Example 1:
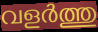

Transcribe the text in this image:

വളർത്തു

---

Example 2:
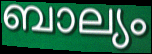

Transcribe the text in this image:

ബാല്യം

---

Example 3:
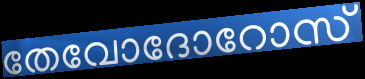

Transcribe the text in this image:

തേവോദോറോസ്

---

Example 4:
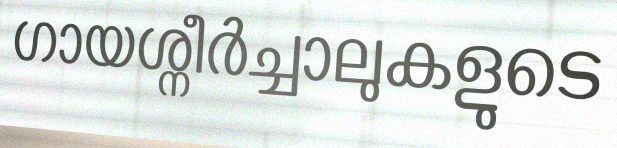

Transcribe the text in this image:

ഗായശ്നീർച്ചാലുകളുടെ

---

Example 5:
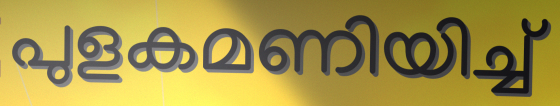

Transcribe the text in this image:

പുളകമണിയിച്ച്